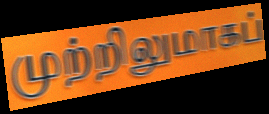
முற்றிலுமாகப்